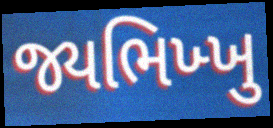
જ્યભિખ્ખુ